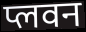
प्लवन